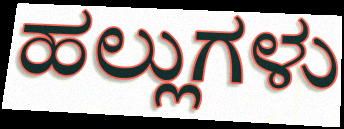
ಹಲ್ಲುಗಳು